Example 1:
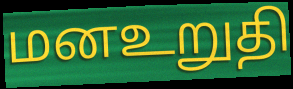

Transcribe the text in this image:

மனஉறுதி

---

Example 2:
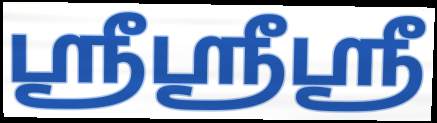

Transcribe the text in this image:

ஸ்ரீஸ்ரீஸ்ரீ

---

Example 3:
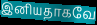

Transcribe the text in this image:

இனியதாகவே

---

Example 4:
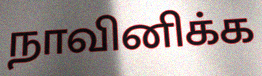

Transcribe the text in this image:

நாவினிக்க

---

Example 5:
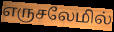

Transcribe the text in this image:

எருசலேமில்